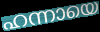
ഹന്നായെ